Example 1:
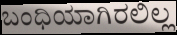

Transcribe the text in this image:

ಬಂಧಿಯಾಗಿರಲಿಲ್ಲ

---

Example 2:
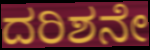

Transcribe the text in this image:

ದರಿಶನೇ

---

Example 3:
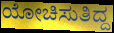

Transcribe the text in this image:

ಯೋಚಿಸುತಿದ್ದ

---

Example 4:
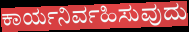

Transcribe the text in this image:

ಕಾರ್ಯನಿರ್ವಹಿಸುವುದು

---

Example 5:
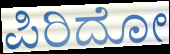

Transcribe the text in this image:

ಪಿರಿದೋ